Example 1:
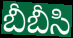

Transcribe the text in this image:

బీబీసి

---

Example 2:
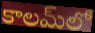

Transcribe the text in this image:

కాలమ్‍లో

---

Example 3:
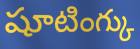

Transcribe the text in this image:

షూటింగ్కు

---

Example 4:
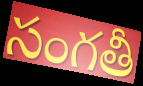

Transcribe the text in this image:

సంగతీ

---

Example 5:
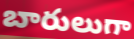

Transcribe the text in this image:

బారులుగా